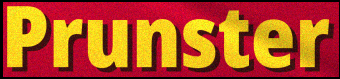
Prunster